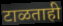
टाळताही